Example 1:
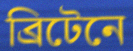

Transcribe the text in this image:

ব্রিটেনে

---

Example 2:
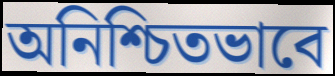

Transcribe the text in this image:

অনিশ্চিতভাবে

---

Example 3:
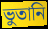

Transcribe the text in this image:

ভুতানি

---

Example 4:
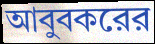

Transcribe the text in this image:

আবুবকরের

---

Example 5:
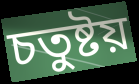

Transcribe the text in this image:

চতুষ্টয়